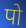
पो